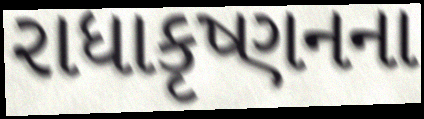
રાધાકૃષ્ણનના